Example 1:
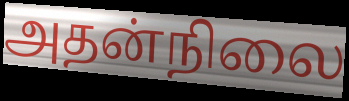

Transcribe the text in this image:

அதன்நிலை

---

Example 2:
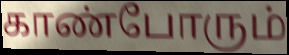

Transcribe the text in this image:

காண்போரும்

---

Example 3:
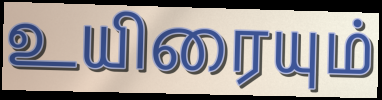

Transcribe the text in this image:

உயிரையும்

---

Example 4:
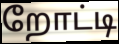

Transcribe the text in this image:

றோட்டி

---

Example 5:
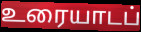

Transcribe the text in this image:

உரையாடப்